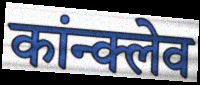
कांन्क्लेव